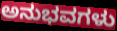
ಅನುಭವಗಳು